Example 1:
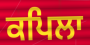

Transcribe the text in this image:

ਕਪਿਲਾ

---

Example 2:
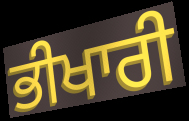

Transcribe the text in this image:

ਭੀਖਾਰੀ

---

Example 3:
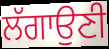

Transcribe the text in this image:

ਲੱਗਾਉਣੀ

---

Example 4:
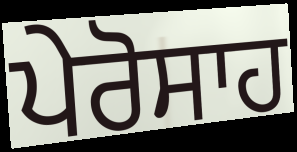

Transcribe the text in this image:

ਪੇਰੋਸਾਹ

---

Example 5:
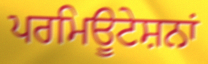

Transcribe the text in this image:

ਪਰਮਿਊਟੇਸ਼ਨਾਂ